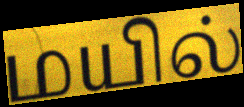
மயில்